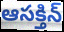
ఆసక్తిన్